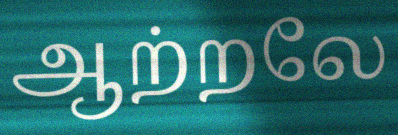
ஆற்றலே